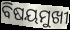
ବିଷୟମୁଖୀ